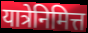
यात्रेनिमित्त